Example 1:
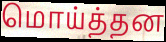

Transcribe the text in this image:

மொய்த்தன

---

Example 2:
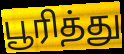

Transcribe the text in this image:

பூரித்து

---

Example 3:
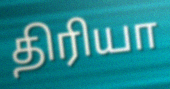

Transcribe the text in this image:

திரியா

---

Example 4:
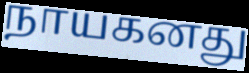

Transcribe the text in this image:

நாயகனது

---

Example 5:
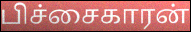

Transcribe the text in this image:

பிச்சைகாரன்